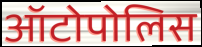
ऑटोपोलिस